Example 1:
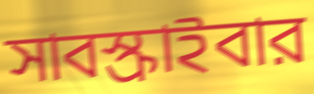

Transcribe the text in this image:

সাবস্ক্রাইবার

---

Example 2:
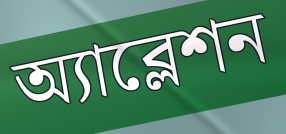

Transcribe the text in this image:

অ্যাব্লেশন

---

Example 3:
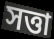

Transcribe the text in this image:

সত্তা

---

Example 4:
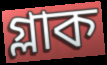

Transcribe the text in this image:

গ্লাক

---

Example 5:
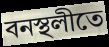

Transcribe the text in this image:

বনস্থলীতে